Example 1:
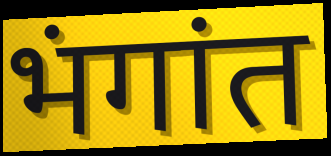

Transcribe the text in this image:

भंगांत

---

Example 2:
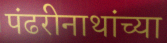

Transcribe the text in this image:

पंढरीनाथांच्या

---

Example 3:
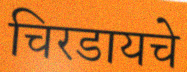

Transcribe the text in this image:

चिरडायचे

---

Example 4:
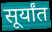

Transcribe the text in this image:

सूर्यांत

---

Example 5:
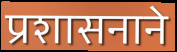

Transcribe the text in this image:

प्रशासनाने